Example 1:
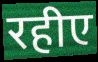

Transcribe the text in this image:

रहीए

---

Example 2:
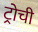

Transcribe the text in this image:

ट्रोची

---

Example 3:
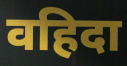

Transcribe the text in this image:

वहिदा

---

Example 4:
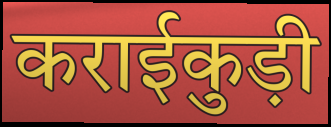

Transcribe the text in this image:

कराईकुड़ी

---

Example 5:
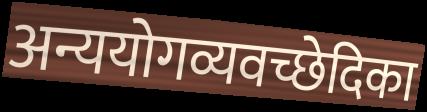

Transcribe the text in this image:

अन्ययोगव्यवच्छेदिका